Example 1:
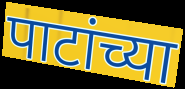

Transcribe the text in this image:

पाटांच्या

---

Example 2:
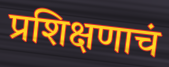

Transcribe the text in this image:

प्रशिक्षणाचं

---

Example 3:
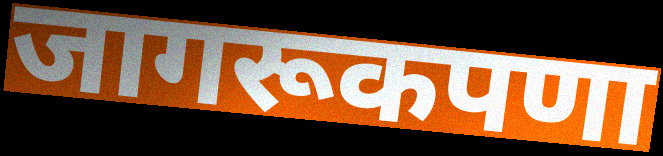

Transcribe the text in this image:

जागरूकपणा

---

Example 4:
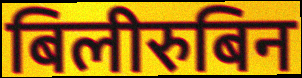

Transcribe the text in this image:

बिलीरुबिन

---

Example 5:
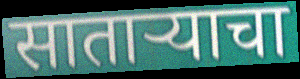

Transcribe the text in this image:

साताऱ्याचा